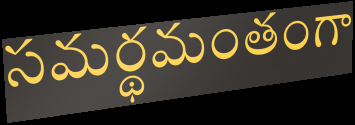
సమర్థమంతంగా